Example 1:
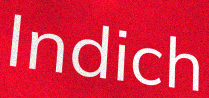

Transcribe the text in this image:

Indich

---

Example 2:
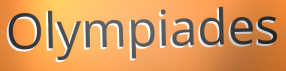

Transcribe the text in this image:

Olympiades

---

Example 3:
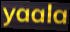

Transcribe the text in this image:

yaala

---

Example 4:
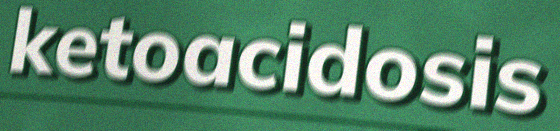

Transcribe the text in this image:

ketoacidosis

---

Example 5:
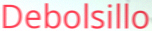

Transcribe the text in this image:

Debolsillo